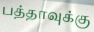
பத்தாவுக்கு